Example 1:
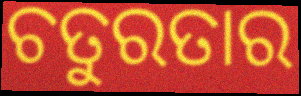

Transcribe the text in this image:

ଚତୁରତାର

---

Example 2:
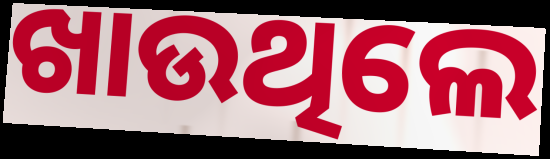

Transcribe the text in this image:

ଖାଉଥିଲେ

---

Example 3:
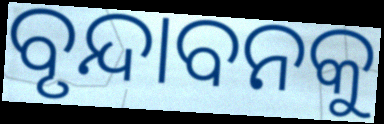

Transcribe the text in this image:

ବୃନ୍ଦାବନକୁ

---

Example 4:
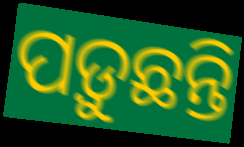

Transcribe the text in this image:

ପଡ଼ୁଛନ୍ତି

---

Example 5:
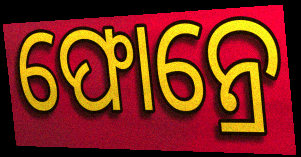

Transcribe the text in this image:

ଫୋନ୍ରେ